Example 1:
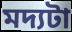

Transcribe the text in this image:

মদ্যটা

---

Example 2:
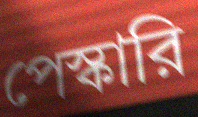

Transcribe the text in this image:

পেস্কারি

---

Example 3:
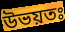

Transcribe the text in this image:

উভয়তঃ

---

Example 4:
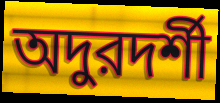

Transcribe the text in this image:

অদুরদর্শী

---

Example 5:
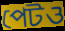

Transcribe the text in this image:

পেটও